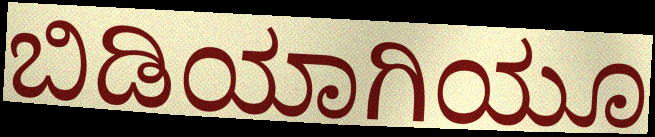
ಬಿಡಿಯಾಗಿಯೂ